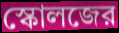
স্কোলজের